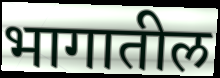
भागातील